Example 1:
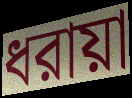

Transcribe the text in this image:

ধরায়া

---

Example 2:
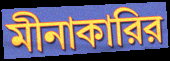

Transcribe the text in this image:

মীনাকারির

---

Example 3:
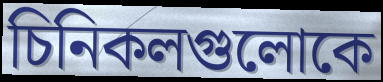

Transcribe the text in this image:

চিনিকলগুলোকে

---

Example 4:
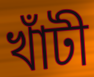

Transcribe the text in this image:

খাঁটী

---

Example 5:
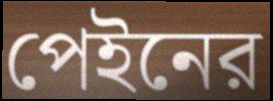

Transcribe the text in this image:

পেইনের